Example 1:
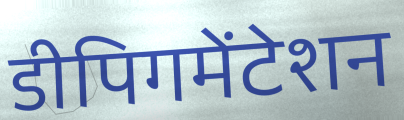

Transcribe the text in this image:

डीपिगमेंटेशन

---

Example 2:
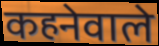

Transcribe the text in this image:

कहनेवाले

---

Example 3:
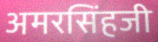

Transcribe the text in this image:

अमरसिंहजी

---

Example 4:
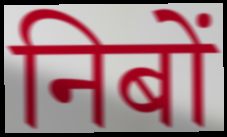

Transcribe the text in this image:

निबों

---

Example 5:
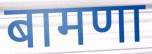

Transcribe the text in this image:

बामणा